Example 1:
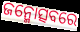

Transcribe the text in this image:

ଜନ୍ମୋତ୍ସବରେ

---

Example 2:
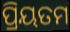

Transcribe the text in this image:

ପ୍ରିୟତମ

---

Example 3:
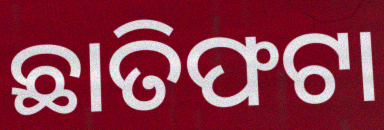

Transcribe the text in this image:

ଛାତିଫଟା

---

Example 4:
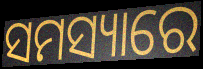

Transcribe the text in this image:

ସମସ୍ୟାରେ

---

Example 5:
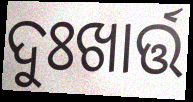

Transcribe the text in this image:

ଦୁଃଖାର୍ତ୍ତ